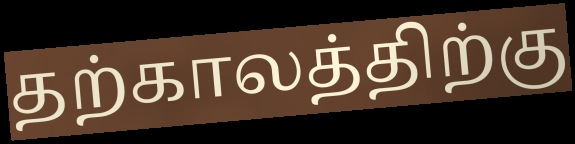
தற்காலத்திற்கு